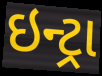
ઇન્ટ્રા